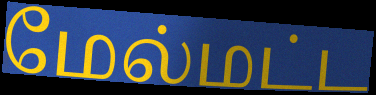
மேல்மட்ட